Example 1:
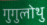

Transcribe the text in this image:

गुगुलोथु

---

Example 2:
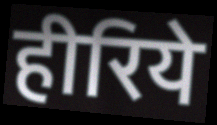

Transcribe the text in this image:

हीरिये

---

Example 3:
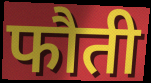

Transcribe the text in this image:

फौती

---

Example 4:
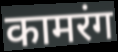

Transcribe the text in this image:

कामरंग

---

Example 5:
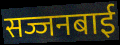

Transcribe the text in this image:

सज्जनबाई